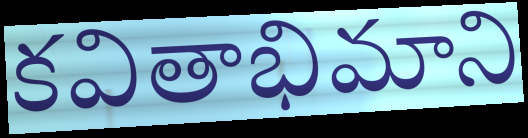
కవితాభిమాని